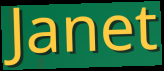
Janet